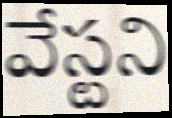
వేస్టని